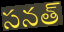
సనత్